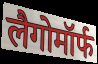
लैगोमॉर्फ